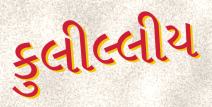
કુલીલ્લીય